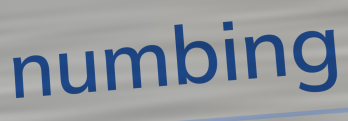
numbing